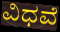
ವಿಧವೆ